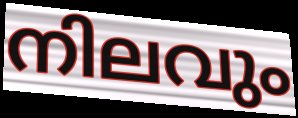
നിലവും